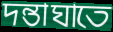
দন্তাঘাতে